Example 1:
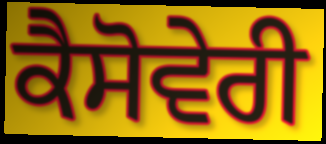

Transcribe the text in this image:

ਕੈਸੋਵੇਰੀ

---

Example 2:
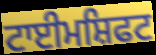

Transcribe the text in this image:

ਟਾਈਮਸ਼ਿਫਟ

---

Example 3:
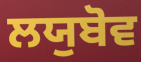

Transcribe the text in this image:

ਲਯੁਬੋਵ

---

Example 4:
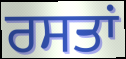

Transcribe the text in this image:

ਰਸਤਾਂ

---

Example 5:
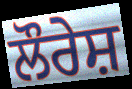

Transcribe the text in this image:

ਲੌਰੇਸ਼